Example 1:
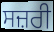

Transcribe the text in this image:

ਸਜ਼ਰੀ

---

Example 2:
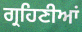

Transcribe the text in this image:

ਗ੍ਰਹਿਣੀਆਂ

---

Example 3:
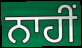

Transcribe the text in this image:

ਨਾਹੀਂ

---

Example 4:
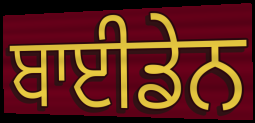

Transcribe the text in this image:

ਬਾਈਡੇਨ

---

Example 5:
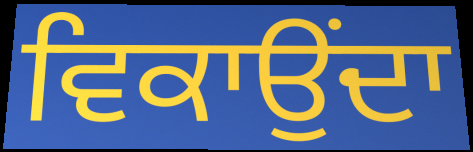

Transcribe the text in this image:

ਵਿਕਾਉੰਦਾ